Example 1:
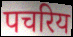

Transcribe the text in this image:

पचरिय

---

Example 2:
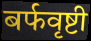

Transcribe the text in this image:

बर्फवृष्टी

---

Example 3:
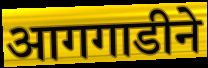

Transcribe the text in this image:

आगगाडीने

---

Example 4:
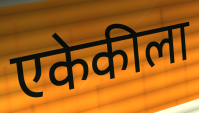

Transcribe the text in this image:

एकेकीला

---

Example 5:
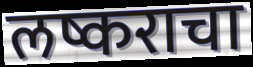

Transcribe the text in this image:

लष्कराचा